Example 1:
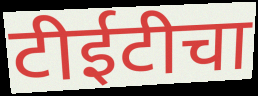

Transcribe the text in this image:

टीईटीचा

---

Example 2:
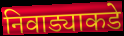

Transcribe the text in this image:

निवाड्याकडे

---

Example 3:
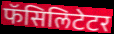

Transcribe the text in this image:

फॅसिलिटेटर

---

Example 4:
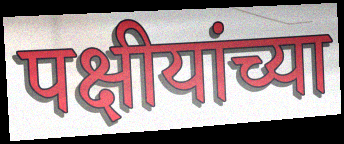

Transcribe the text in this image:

पक्षीयांच्या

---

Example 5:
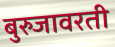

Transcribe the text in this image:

बुरुजावरती